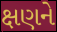
ક્ષણને